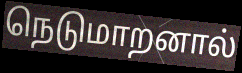
நெடுமாறனால்